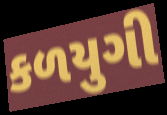
કળયુગી